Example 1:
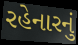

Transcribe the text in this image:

રહેનારનું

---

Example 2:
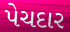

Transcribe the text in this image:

પેચદાર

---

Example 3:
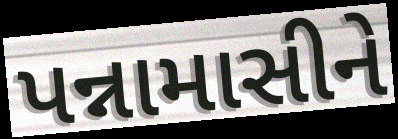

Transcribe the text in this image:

પન્નામાસીને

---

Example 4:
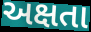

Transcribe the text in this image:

અક્ષતા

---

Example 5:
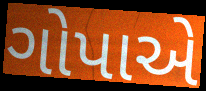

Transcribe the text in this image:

ગોપાએ